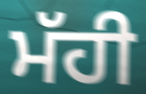
ਮੱਹੀ